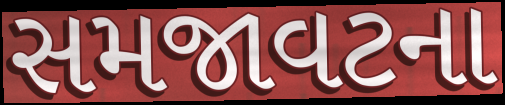
સમજાવટના